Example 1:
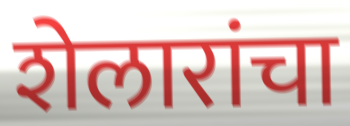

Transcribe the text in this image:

शेलारांचा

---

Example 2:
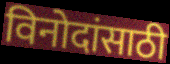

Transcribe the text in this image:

विनोदांसाठी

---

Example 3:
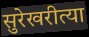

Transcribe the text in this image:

सुरेखरीत्या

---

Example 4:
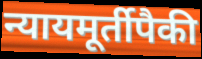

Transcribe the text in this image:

न्यायमूर्तीपैकी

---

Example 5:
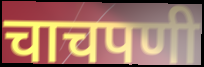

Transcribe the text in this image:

चाचपणी